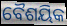
ବୈଶୟିକ